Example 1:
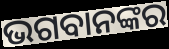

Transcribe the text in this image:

ଭଗବାନଙ୍କର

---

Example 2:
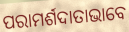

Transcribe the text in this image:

ପରାମର୍ଶଦାତାଭାବେ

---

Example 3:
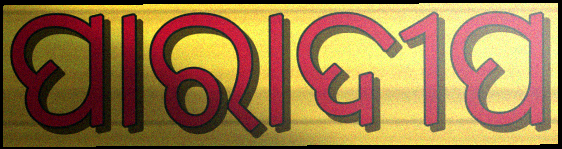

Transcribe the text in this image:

ପାରାଦୀପ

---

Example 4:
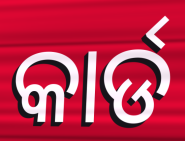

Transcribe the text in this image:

କାର୍ଡ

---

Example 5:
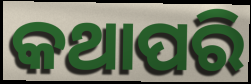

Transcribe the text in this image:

କଥାପରି